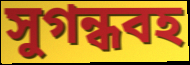
সুগন্ধবহ